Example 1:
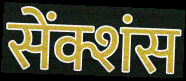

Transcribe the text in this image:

सेंक्शंस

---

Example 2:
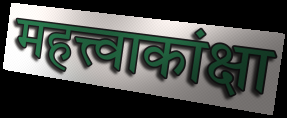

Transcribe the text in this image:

महत्त्वाकांक्षा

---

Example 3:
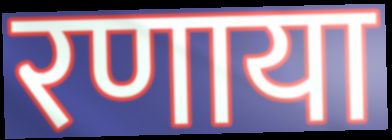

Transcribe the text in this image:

रणाया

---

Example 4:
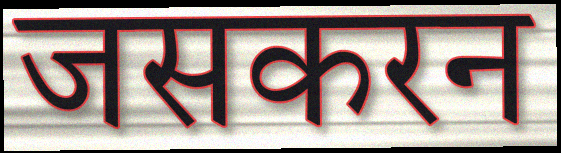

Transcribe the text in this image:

जसकरन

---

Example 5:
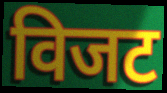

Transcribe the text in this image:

विजट